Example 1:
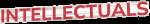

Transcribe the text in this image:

INTELLECTUALS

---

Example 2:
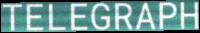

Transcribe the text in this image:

TELEGRAPH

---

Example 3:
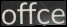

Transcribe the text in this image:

offce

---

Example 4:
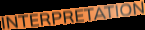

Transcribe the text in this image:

INTERPRETATION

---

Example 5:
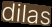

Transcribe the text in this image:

dilas